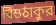
বিশুঠাকুর